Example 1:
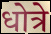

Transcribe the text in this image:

धोत्रे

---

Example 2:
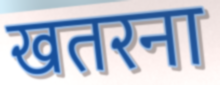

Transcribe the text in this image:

खतरना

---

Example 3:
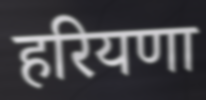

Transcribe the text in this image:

हरियणा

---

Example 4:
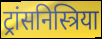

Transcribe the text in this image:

ट्रांसनिस्त्रिया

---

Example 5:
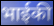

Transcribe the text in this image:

भाईकी